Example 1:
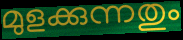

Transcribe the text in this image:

മുളക്കുന്നതും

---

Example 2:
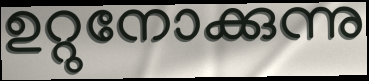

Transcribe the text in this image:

ഉറ്റുനോക്കുന്നു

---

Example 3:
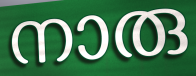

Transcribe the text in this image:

നാരു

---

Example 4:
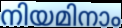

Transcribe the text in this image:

നിയമിനാം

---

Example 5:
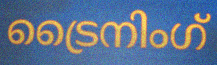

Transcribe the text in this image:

ട്രൈനിംഗ്